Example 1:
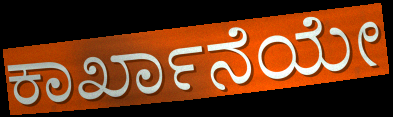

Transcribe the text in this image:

ಕಾರ್ಖಾನೆಯೇ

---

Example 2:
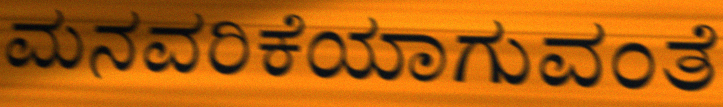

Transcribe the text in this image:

ಮನವರಿಕೆಯಾಗುವಂತೆ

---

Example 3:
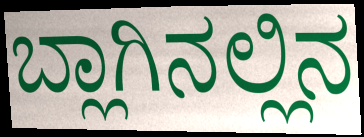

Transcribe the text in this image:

ಬ್ಲಾಗಿನಲ್ಲಿನ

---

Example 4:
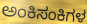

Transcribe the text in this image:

ಅಂಕಿಸಂಕಿಗಳ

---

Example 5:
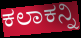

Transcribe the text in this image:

ಕಲಾಕನ್ನಿ